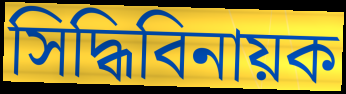
সিদ্ধিবিনায়ক